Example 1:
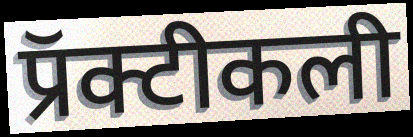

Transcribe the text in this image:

प्रॅक्टीकली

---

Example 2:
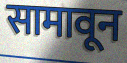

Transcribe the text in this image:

सामावून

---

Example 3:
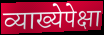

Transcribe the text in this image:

व्याख्येपेक्षा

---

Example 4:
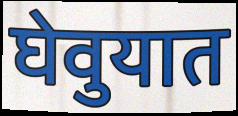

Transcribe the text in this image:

घेवुयात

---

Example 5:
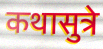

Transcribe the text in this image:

कथासुत्रे